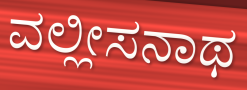
ವಲ್ಲೀಸನಾಥ